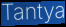
Tantya